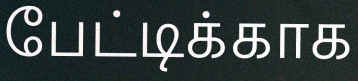
பேட்டிக்காக